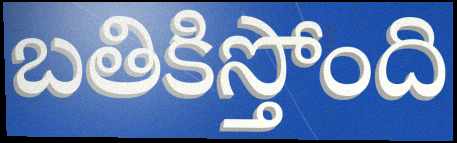
బతికిస్తోంది